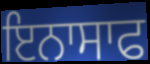
ਇਨਾਸਾਫ